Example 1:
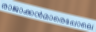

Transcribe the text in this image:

രാജാക്കൻമാരെപ്പോലെ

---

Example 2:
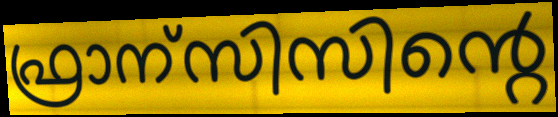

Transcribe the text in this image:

ഫ്രാന്സിസിന്റെ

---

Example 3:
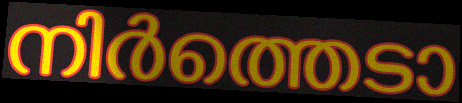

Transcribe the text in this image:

നിർത്തെടാ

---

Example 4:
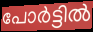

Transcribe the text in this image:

പോർട്ടിൽ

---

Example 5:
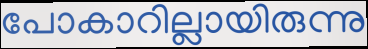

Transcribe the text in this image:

പോകാറില്ലായിരുന്നു